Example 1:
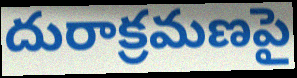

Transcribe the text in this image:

దురాక్రమణపై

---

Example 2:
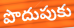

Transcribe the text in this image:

పొదుపుకు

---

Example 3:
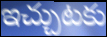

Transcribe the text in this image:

ఇచ్చుటకు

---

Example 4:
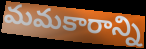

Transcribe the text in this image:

మమకారాన్ని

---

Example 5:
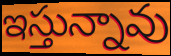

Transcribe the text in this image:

ఇస్తున్నావు